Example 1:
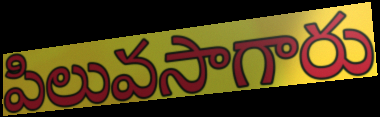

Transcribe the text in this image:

పిలువసాగారు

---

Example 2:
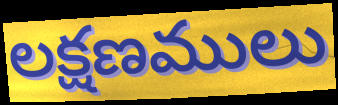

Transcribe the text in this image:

లక్షణములు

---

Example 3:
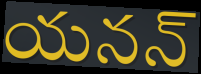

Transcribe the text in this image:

యనన్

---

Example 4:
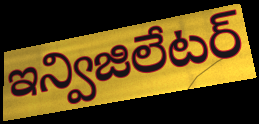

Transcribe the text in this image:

ఇన్విజిలేటర్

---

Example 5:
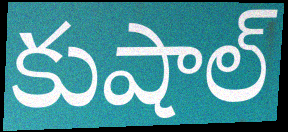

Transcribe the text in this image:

కుషాల్